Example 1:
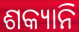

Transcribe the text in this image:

ଶକ୍ୟାନି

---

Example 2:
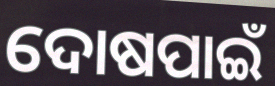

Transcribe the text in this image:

ଦୋଷପାଇଁ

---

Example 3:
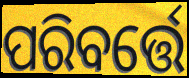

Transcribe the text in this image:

ପରିବର୍ତ୍ତେ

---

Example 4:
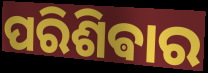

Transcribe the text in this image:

ପରିଶିଵାର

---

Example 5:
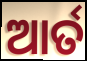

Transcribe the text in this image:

ଆର୍ତ